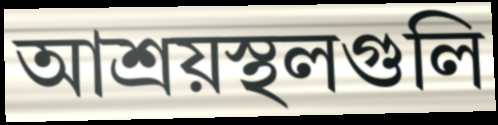
আশ্রয়স্থলগুলি